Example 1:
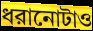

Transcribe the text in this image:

ধরানোটাও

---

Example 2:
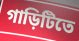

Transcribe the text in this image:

গাড়িটিতে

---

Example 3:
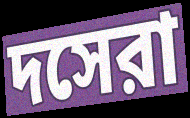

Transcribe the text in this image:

দসেরা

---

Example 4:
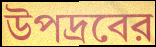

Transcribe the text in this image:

উপদ্রবের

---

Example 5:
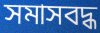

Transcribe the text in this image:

সমাসবদ্ধ